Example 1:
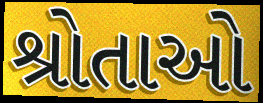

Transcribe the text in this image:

શ્રોતાઓ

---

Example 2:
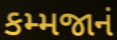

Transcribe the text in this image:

કમ્મજાનં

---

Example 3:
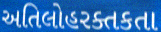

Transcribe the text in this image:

અતિલોહરક્તકતા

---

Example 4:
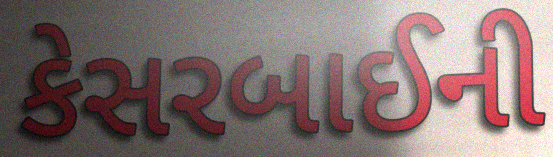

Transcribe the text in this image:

કેસરબાઈની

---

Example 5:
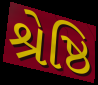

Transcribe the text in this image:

શ્રેષ્ઠિ